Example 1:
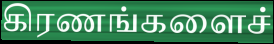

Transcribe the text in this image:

கிரணங்களைச்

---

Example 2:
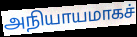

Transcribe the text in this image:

அநியாயமாகச்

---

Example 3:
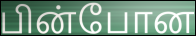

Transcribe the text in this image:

பின்போன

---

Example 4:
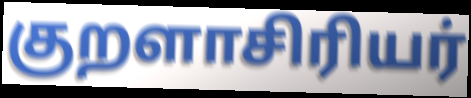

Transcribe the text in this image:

குறளாசிரியர்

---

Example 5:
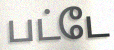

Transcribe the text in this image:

பட்டே